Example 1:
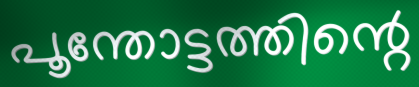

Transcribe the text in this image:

പൂന്തോട്ടത്തിന്റെ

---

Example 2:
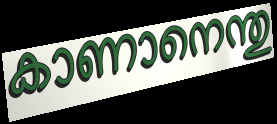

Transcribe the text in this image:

കാണാനെന്തു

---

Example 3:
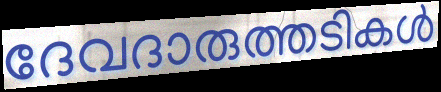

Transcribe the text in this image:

ദേവദാരുത്തടികൾ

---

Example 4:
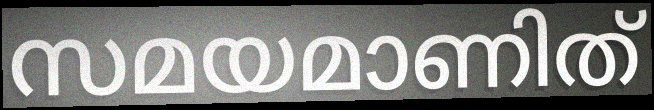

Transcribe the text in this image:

സമയമാണിത്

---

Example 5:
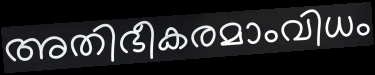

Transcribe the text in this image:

അതിഭീകരമാംവിധം